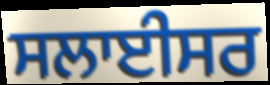
ਸਲਾਈਸਰ